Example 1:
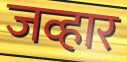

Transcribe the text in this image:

जव्हार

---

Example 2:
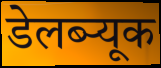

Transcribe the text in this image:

डेलब्ऱ्यूक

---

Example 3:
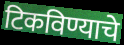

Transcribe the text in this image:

टिकविण्याचे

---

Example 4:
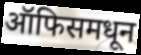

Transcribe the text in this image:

ऑफिसमधून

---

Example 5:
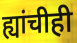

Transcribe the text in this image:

ह्यांचीही